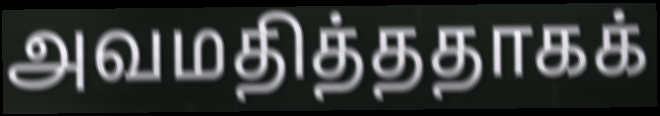
அவமதித்ததாகக்